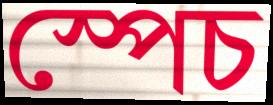
স্পেচ